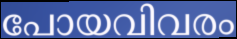
പോയവിവരം